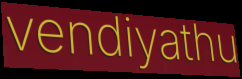
vendiyathu